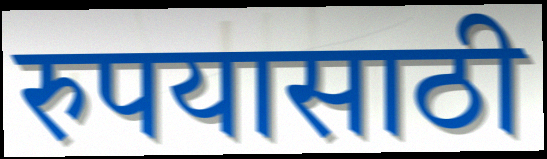
रुपयासाठी